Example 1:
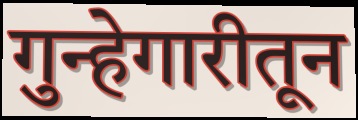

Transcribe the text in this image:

गुन्हेगारीतून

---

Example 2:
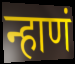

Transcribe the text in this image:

न्हाणं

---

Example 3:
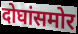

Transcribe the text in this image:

दोघांसमोर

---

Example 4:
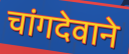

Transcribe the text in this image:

चांगदेवाने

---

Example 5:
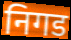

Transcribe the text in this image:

निगड